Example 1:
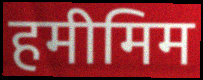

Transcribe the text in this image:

हमीमिम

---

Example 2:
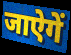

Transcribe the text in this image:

जाऐगें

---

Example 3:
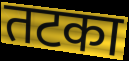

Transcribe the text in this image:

तटका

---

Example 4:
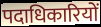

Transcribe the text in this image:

पदाधिकारियों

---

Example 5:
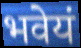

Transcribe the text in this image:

भवेयं